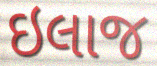
ઇલાજ